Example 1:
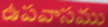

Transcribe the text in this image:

ఉపవాసము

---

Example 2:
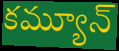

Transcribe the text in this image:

కమ్యూన్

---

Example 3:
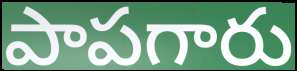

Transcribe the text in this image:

పాపగారు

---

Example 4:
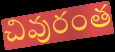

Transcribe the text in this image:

చివురంత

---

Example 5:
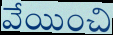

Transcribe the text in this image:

వేయించి